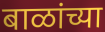
बाळांच्या